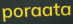
poraata